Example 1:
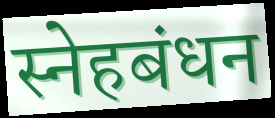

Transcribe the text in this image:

स्नेहबंधन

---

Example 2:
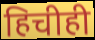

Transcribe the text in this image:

हिचीही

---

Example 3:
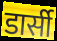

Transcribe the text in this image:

डार्सी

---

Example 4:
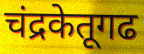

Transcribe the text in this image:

चंद्रकेतूगढ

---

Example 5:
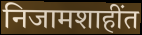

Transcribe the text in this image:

निजामशाहींत